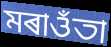
মৰাওঁতা